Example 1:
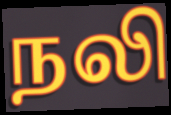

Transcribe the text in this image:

நலி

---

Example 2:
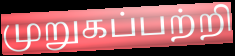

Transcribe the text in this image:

முறுகப்பற்றி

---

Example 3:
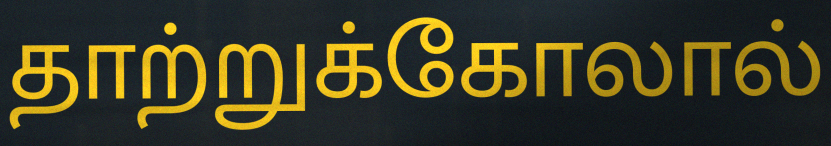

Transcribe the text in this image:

தாற்றுக்கோலால்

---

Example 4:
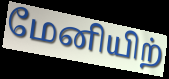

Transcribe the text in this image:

மேனியிற்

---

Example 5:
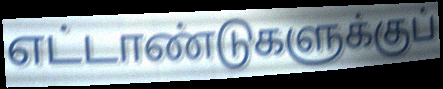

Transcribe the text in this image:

எட்டாண்டுகளுக்குப்